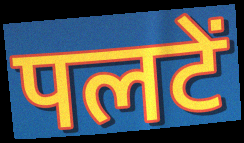
पलटें